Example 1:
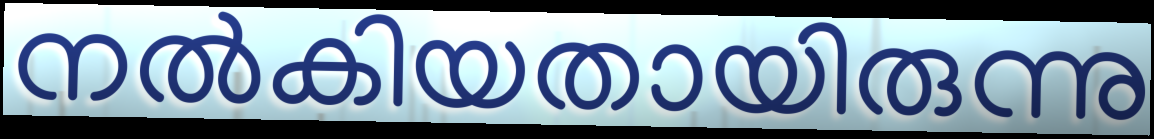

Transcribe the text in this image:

നൽകിയതായിരുന്നു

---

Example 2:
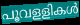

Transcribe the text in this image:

പൂവളളികൾ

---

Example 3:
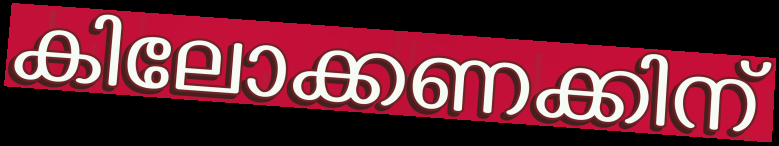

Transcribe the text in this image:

കിലോക്കണക്കിന്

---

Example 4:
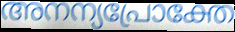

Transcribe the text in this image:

അനന്യപ്രോക്തേ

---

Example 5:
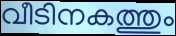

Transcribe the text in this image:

വീടിനകത്തും